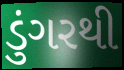
ડુંગરથી